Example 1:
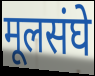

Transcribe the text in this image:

मूलसंघे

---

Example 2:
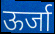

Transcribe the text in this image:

ऊर्जा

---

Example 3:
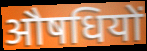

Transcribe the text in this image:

औषधियों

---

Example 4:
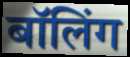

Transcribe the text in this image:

बॉलिंग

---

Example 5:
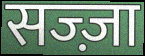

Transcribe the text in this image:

सज्ज़ा